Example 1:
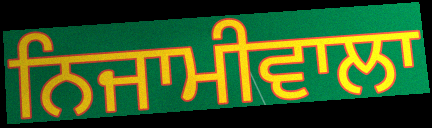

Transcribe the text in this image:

ਨਿਜਾਮੀਵਾਲਾ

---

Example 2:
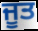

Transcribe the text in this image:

ਜੂਤ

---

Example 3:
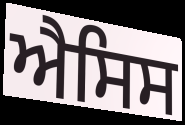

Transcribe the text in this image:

ਐਸਿਸ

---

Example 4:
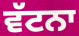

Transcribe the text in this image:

ਵੱਟਨਾ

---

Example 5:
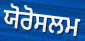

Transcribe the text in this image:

ਯੋਰੋਸਲਮ